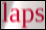
laps